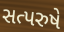
સત્પરુષે